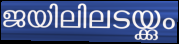
ജയിലിലടയ്ക്കും